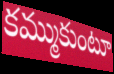
కమ్ముకుంటూ